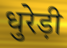
धुरेड़ी